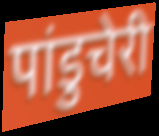
पांडुचेरी